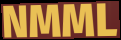
NMML